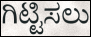
ಗಿಟ್ಟಿಸಲು